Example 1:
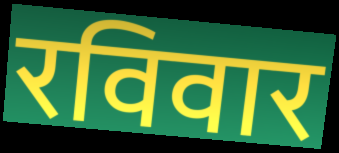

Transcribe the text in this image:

रविवार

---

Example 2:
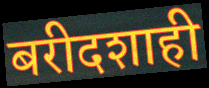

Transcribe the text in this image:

बरीदशाही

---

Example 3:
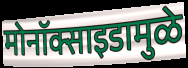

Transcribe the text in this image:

मोनॉक्साइडामुळे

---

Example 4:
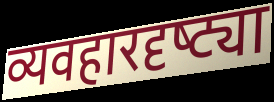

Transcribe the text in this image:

व्यवहारदृष्ट्या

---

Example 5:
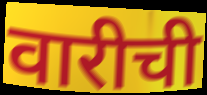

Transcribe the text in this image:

वारीची